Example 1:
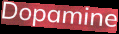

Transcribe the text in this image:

Dopamine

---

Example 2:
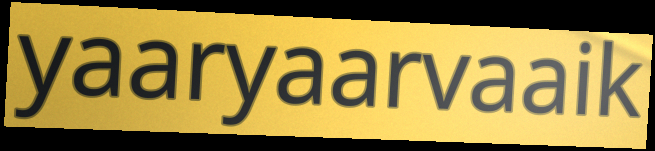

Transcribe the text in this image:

yaaryaarvaaik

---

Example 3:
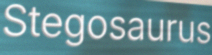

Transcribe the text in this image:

Stegosaurus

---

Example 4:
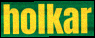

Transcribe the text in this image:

holkar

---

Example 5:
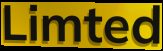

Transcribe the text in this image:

Limted